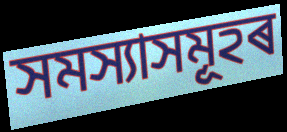
সমস্যাসমূহৰ